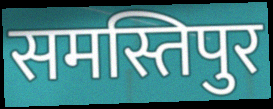
समस्तिपुर